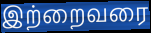
இற்றைவரை